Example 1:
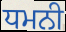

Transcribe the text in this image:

ਧਮਨੀ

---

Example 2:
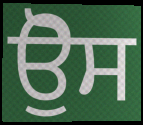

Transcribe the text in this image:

ਉੋਸ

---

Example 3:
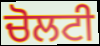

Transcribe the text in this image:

ਚੋਲਟੀ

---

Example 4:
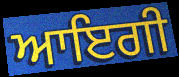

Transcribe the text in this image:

ਆਇਗੀ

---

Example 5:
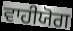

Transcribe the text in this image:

ਵਾਹੀਯੋਗ